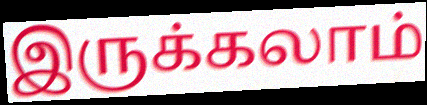
இருக்கலாம்